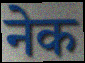
नेक